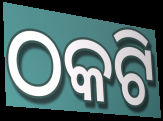
ଠକଟି